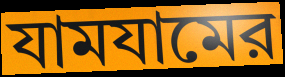
যামযামের